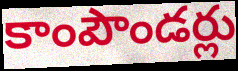
కాంపౌండర్లు